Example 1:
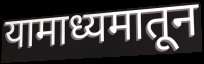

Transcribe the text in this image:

यामाध्यमातून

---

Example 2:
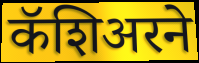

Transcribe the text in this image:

कॅशिअरने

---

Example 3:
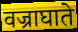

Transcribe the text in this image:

वज्राघाते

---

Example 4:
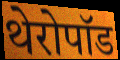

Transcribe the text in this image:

थेरोपॉड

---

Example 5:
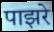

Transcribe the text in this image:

पाझरे